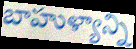
బాహుళ్యాన్ని